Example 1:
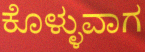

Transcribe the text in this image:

ಕೊಳ್ಳುವಾಗ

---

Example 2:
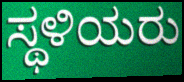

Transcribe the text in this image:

ಸ್ಥಳಿಯರು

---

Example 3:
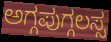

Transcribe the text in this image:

ಅಗ್ಗಪುಗ್ಗಲಸ್ಸ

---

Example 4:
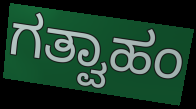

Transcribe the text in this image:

ಗತ್ವಾಹಂ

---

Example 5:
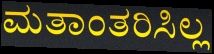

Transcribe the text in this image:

ಮತಾಂತರಿಸಿಲ್ಲ